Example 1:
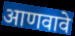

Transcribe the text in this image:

आणवावे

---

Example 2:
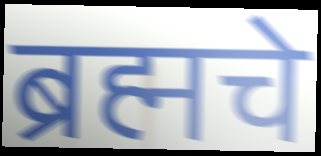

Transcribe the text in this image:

ब्रह्मचे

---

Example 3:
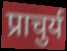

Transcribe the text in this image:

प्राचुर्य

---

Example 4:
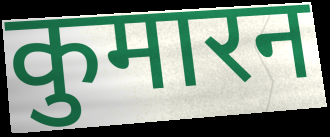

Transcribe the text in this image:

कुमारन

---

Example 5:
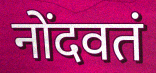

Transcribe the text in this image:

नोंदवतं